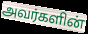
அவர்களின்